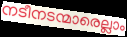
നടീനടന്മാരെല്ലാം